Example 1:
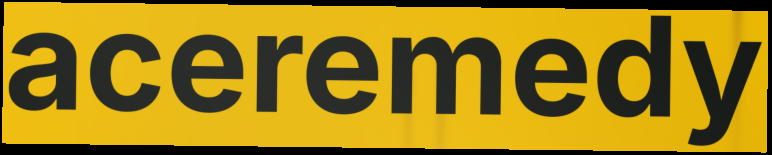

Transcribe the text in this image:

aceremedy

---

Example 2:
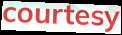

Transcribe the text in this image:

courtesy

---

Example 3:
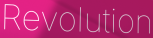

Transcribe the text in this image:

Revolution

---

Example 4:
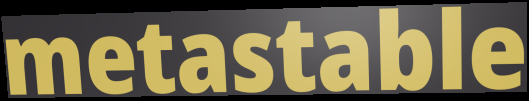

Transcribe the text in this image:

metastable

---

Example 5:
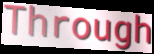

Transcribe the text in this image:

Through